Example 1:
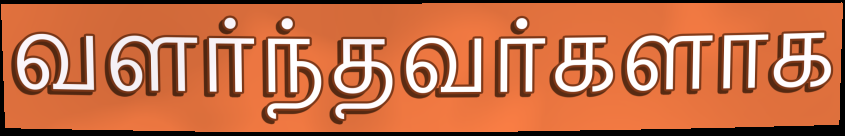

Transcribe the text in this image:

வளர்ந்தவர்களாக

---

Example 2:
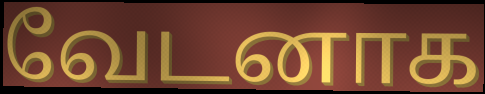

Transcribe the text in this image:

வேடனாக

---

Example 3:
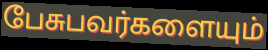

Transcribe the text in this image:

பேசுபவர்களையும்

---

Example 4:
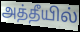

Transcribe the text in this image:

அத்தீயில்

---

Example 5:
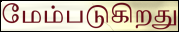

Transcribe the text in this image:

மேம்படுகிறது